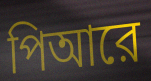
পিআরে